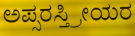
ಅಪ್ಸರಸ್ತ್ರೀಯರ